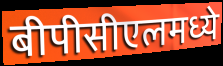
बीपीसीएलमध्ये